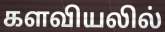
களவியலில்